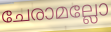
ചേരാമല്ലോ